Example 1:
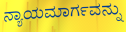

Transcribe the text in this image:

ನ್ಯಾಯಮಾರ್ಗವನ್ನು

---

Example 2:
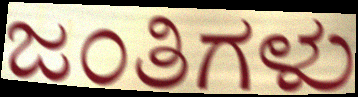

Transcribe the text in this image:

ಜಂತಿಗಳು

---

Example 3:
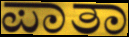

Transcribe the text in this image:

ಪಾತಾ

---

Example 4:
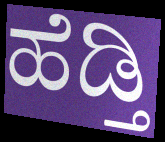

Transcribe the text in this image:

ಹೆಡ್ತಿ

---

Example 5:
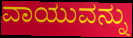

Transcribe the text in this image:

ವಾಯುವನ್ನು